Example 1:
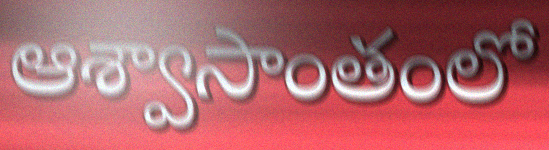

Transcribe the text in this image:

ఆశ్వాసాంతంలో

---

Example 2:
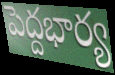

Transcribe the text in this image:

పెద్దభార్య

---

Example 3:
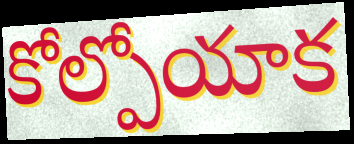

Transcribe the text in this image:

కోల్పోయాక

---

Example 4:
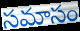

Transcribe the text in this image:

సమాసం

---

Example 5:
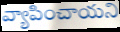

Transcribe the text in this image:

వ్యాపించాయని